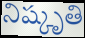
నిష్కృతి